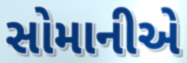
સોમાનીએ